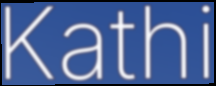
Kathi